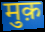
मुक़